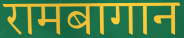
रामबागान